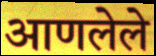
आणलेले